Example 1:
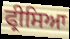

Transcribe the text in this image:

ਫ੍ਰੀਸਿਆ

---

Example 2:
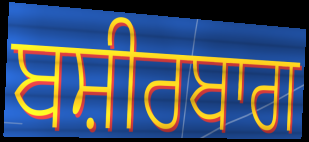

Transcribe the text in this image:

ਬਸ਼ੀਰਬਾਗ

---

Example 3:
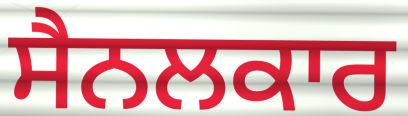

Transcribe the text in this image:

ਸੈਨਲਕਾਰ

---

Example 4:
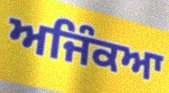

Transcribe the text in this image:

ਅਜਿੰਕਆ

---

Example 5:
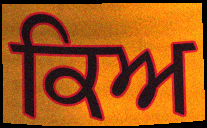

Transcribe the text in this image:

ਕਿਅ